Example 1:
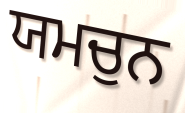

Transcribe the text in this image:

ਯਮਚੁਨ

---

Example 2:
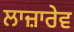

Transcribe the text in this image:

ਲਾਜ਼ਾਰੇਵ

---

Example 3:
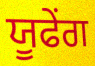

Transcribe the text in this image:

ਯੂਫੇਂਗ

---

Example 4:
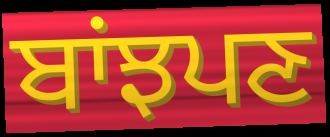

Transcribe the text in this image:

ਬਾਂਝਪਣ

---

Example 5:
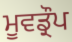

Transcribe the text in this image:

ਮੂਵਡ੍ਰੌਪ